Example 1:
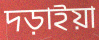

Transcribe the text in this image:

দড়াইয়া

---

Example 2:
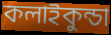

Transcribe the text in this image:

কলাইকুন্ডা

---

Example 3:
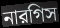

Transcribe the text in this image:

নারগিস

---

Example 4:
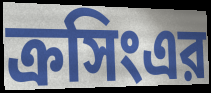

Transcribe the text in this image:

ক্রসিংএর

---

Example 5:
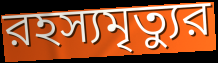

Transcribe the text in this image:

রহস্যমৃত্যুর